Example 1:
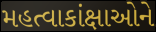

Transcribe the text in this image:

મહત્વાકાંક્ષાઓને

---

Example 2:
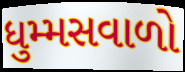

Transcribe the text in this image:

ધુમ્મસવાળો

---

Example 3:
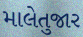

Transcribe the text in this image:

માલેતુજાર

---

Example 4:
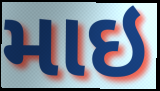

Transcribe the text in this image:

માઇ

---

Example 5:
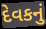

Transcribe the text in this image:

દેવકનું